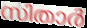
സിതാർ